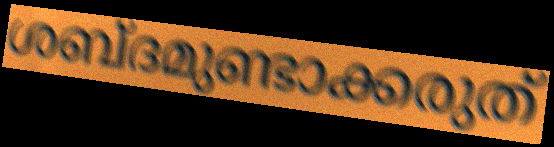
ശബ്ദമുണ്ടാക്കരുത്